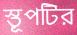
স্তূপটির